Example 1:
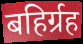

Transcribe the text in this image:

बहिर्ग्रह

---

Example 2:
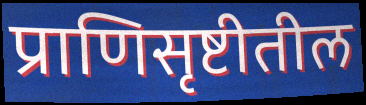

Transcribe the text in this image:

प्राणिसृष्टीतील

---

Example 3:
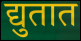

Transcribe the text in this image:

द्युतात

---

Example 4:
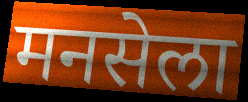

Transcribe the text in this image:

मनसेला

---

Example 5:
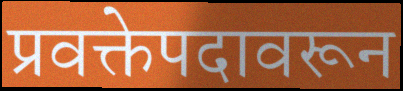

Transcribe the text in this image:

प्रवक्तेपदावरून